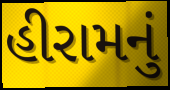
હીરામનું